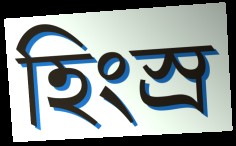
হিংস্র